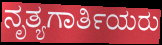
ನೃತ್ಯಗಾರ್ತಿಯರು